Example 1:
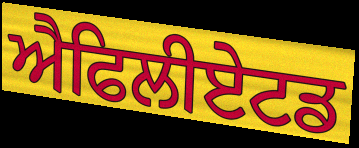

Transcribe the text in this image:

ਐਫਿਲੀਏਟਡ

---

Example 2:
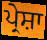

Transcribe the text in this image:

ਪ੍ਰੇਸ਼ਾ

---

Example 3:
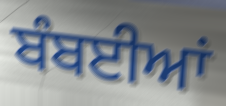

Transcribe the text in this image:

ਬੰਬਈਆਂ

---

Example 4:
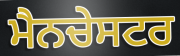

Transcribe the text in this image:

ਮੈਨਚੇਸਟਰ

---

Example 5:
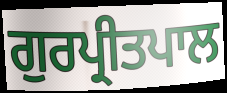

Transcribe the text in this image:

ਗੁਰਪ੍ਰੀਤਪਾਲ